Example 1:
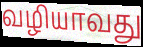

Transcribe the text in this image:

வழியாவது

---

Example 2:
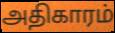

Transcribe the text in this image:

அதிகாரம்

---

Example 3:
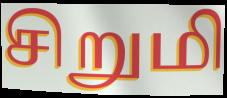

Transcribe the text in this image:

சிறுமி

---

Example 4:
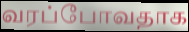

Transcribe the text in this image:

வரப்போவதாக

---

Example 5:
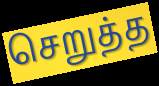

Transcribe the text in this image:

செறுத்த